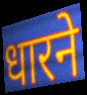
धारने